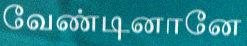
வேண்டினானே